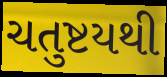
ચતુષ્ટયથી